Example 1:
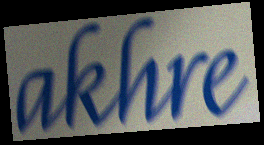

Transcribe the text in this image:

akhre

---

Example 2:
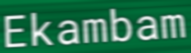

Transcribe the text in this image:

Ekambam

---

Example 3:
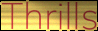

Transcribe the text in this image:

Thrills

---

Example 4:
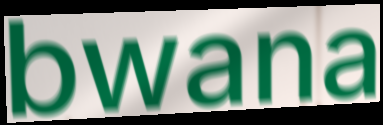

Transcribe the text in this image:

bwana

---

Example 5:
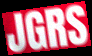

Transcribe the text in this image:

JGRS